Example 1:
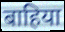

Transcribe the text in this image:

बाहिया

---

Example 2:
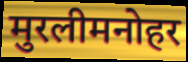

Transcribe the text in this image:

मुरलीमनोहर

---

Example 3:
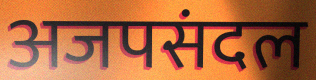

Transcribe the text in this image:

अजपसंदल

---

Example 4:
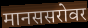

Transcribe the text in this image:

मानससरोवर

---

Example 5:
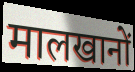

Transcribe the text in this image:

मालखानों